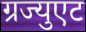
ग्रज्युएट